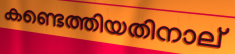
കണ്ടെത്തിയതിനാല്